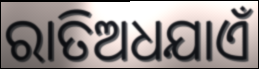
ରାତିଅଧଯାଏଁ